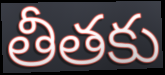
తీతకు